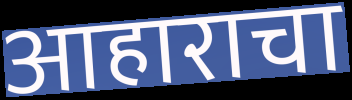
आहाराचा